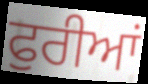
ਫੁਰੀਆਂ